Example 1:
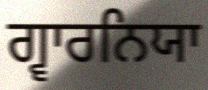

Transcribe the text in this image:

ਗ੍ਵਾਰਨਿਯਾ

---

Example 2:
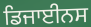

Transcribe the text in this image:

ਡਿਜਾਈਨਸ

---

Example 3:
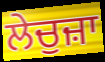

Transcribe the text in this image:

ਲੇਚੁਜ਼ਾ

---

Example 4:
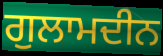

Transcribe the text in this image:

ਗੁਲਾਮਦੀਨ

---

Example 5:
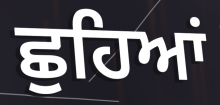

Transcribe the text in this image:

ਛੁਹਿਆਂ